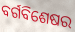
ବର୍ଗବିଶେଷର